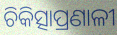
ଚିକିତ୍ସାପ୍ରଣାଳୀ